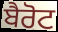
ਬੈਰੋਟ